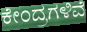
ಕೇಂದ್ರಗಳಿವೆ